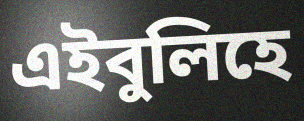
এইবুলিহে